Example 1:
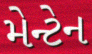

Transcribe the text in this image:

મેન્ટેન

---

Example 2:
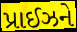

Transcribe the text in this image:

પ્રાઈઝને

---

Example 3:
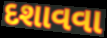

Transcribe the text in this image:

દશાવવા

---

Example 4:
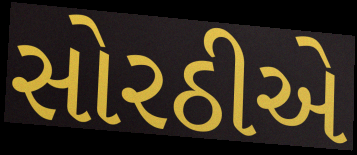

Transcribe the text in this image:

સોરઠીએ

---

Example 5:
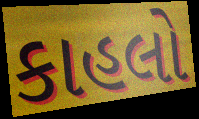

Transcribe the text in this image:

કાહલો